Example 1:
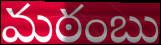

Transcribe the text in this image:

మఠంబు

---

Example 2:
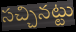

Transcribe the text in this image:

సచ్చినట్టు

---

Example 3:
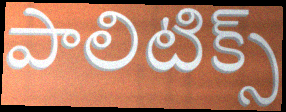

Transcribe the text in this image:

పాలిటిక్స్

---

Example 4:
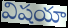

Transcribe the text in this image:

విషయా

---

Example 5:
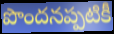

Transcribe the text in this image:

పొందనప్పటికీ